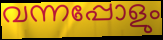
വന്നപ്പോളും